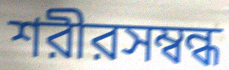
শরীরসম্বন্ধ